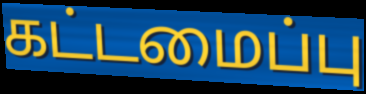
கட்டமைப்பு